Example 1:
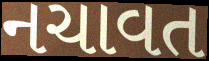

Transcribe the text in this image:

નચાવત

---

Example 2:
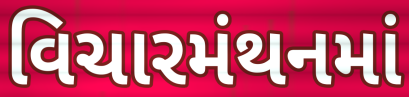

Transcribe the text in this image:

વિચારમંથનમાં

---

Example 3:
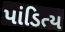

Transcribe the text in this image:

પાંડિત્ય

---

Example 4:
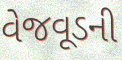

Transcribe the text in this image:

વેજવૂડની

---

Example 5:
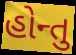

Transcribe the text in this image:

હોન્તુ